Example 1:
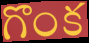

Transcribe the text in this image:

గొంక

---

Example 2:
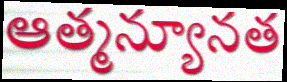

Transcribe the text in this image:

ఆత్మన్యూనత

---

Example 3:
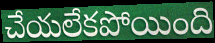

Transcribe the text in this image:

చేయలేకపోయింది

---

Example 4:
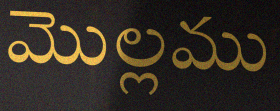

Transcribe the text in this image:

మొల్లము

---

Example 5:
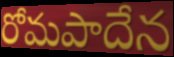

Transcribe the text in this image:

రోమపాదేన